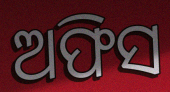
ଅଫିସ